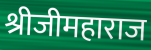
श्रीजीमहाराज